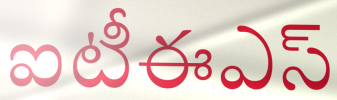
ఐటీఈఎస్